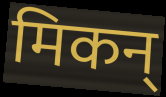
मिकन्